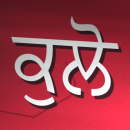
ਕੁਲੋ